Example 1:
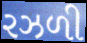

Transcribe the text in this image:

રઝળી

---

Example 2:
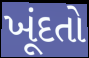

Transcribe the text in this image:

ખૂંદતો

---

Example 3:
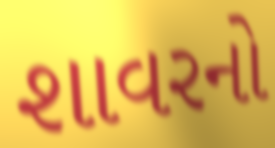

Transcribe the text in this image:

શાવરનો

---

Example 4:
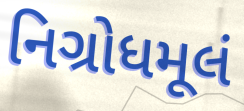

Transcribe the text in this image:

નિગ્રોધમૂલં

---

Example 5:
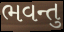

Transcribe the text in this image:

ભવન્તુ